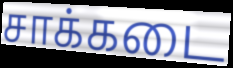
சாக்கடை